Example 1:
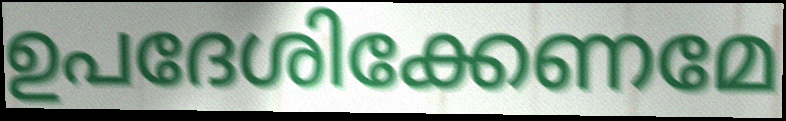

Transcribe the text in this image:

ഉപദേശിക്കേണമേ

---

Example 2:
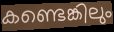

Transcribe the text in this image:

കണ്ടെങ്കിലും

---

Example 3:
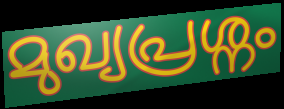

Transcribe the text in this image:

മുഖ്യപ്രശ്നം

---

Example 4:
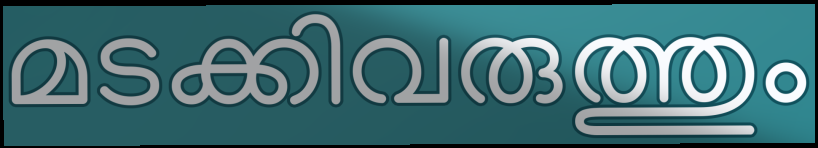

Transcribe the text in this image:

മടക്കിവരുത്തും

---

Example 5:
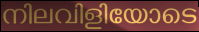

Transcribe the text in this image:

നിലവിളിയോടെ